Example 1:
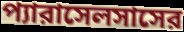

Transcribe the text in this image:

প্যারাসেলসাসের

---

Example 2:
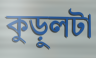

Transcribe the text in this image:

কুড়ুলটা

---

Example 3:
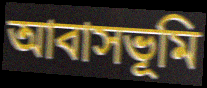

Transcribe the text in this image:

আবাসভূমি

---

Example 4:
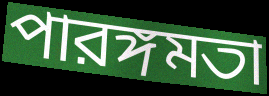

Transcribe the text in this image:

পারঙ্গমতা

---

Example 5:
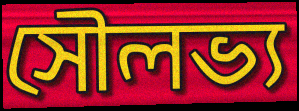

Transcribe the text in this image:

সৌলভ্য